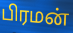
பிரமன்